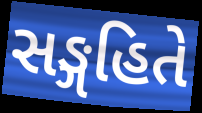
સઙ્ગહિતે